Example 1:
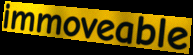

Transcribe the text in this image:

immoveable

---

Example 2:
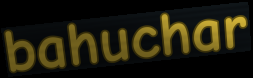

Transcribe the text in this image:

bahuchar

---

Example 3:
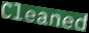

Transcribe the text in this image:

Cleaned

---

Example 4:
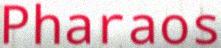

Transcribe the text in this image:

Pharaos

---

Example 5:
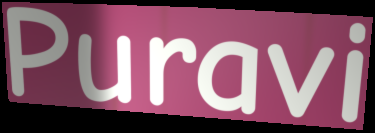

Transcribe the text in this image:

Puravi